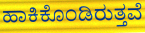
ಹಾಕಿಕೊಂಡಿರುತ್ತವೆ